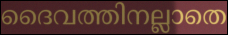
ദൈവത്തിനല്ലാതെ